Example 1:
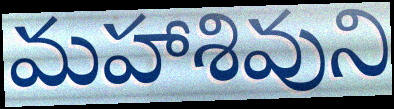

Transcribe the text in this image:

మహాశివుని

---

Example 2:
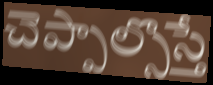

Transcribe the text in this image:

చెప్పాల్సొస్తే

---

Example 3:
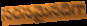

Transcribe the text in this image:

సరసమైనదిగా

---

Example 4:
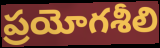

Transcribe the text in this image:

ప్రయోగశీలి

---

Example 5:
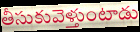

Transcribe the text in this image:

తీసుకువెళ్తుంటాడు